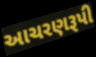
આચરણરૂપી